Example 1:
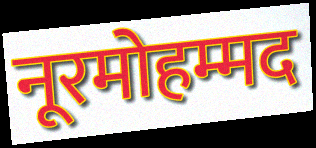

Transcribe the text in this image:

नूरमोहम्मद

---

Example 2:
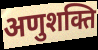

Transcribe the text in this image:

अणुशक्ति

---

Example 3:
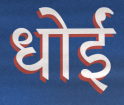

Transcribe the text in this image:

धोईं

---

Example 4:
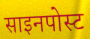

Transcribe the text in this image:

साइनपोस्ट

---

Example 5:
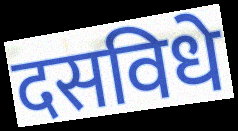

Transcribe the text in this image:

दसविधे